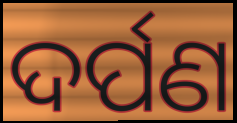
ଦର୍ପଣ